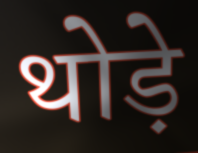
थोड़े